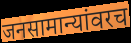
जनसामान्यांवरच